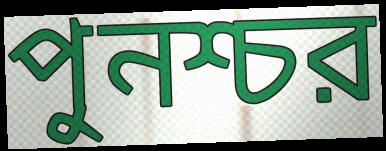
পুনশ্চর